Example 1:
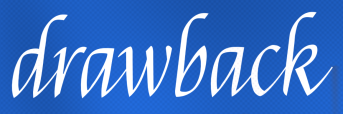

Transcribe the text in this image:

drawback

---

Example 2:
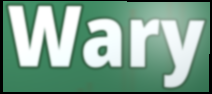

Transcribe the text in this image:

Wary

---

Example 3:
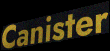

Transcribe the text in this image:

Canister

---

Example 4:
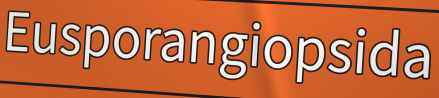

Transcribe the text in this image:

Eusporangiopsida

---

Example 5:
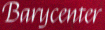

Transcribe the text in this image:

Barycenter